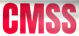
CMSS